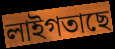
লাইগতাছে